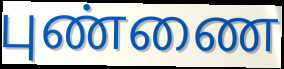
புண்ணை